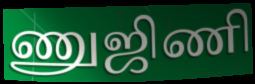
ணுஜிணி